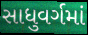
સાધુવર્ગમાં